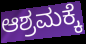
ಆಶ್ರಮಕ್ಕೆ